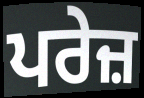
ਪਰੇਜ਼